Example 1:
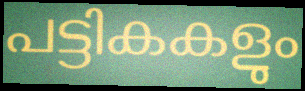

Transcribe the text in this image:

പട്ടികകളും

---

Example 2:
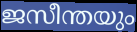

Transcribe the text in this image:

ജസീന്തയും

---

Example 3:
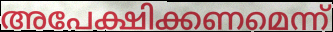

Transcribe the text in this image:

അപേക്ഷിക്കണമെന്ന്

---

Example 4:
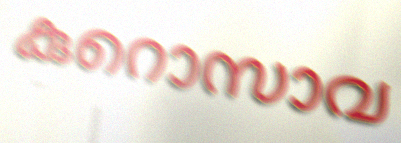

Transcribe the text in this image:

കുറൊസാവ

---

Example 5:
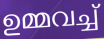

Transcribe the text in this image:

ഉമ്മവച്ച്